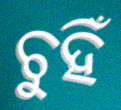
ଚୁହିଁ